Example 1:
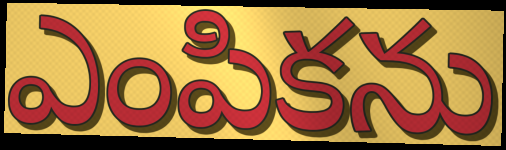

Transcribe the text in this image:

ఎంపికను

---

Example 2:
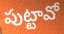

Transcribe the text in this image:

పుట్టావో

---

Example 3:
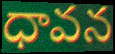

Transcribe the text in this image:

ధావన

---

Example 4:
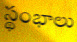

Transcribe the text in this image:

స్థంభాలు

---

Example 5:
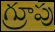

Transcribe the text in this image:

గ్రూపు